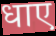
धाए